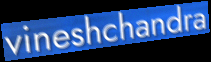
vineshchandra